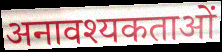
अनावश्यकताओं